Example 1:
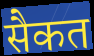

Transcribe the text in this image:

सैकत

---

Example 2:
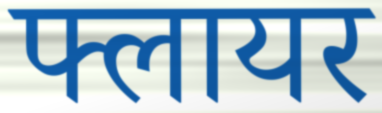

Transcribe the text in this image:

फ्लायर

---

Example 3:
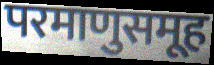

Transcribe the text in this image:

परमाणुसमूह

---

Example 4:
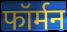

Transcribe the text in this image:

फॉर्मन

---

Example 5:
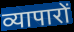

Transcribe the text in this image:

व्यापारों